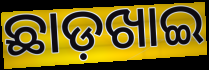
ଛାଡ଼ଖାଇ